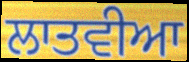
ਲਾਤਵੀਆ